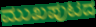
ಮುಖಪುಟದ